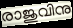
രാജുവിനു